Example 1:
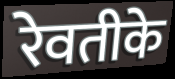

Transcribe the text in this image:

रेवतीके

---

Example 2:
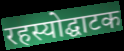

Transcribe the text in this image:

रहस्योद्घाटक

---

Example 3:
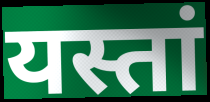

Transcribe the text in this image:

यस्तां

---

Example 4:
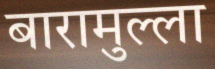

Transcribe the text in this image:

बारामुल्ला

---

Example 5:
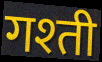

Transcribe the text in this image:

गश्‍ती